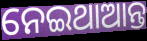
ନେଇଥାଆନ୍ତ